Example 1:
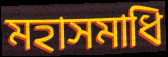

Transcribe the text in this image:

মহাসমাধি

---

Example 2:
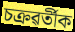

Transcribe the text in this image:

চক্ৰৱৰ্তীক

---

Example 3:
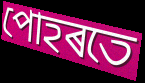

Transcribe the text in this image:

পোহৰতে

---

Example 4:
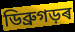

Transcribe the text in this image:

ডিব্ৰুগড়ৰ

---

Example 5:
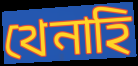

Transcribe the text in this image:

থেনাহি